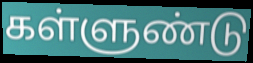
கள்ளுண்டு